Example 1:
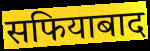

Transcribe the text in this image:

सफियाबाद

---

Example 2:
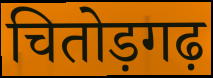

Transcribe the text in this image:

चितोड़गढ़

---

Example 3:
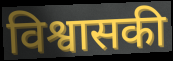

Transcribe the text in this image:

विश्वासकी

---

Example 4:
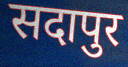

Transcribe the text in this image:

सदापुर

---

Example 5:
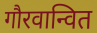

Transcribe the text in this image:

गौरवान्वित